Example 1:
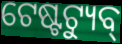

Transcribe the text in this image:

ଟେଷ୍ଟଟ୍ୟୁବ୍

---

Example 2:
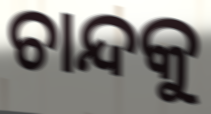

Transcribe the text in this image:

ଚାନ୍ଦକୁ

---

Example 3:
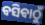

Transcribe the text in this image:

ବସିବାଠୁଁ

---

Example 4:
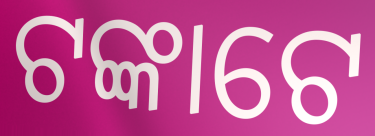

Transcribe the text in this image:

ଟଙ୍କାଟେ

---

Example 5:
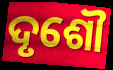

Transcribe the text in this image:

ଦୃଶୌ